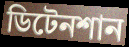
ডিটেনশান